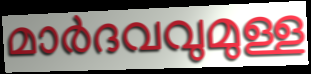
മാർദവവുമുള്ള